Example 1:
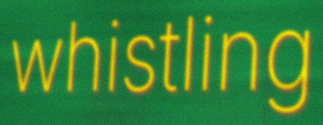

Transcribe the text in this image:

whistling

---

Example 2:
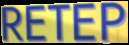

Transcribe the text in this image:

RETEP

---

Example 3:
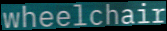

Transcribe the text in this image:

wheelchair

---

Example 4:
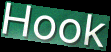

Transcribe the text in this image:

Hook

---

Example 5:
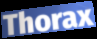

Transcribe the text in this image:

Thorax